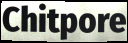
Chitpore